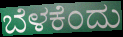
ಬೆಳಕೆಂದು